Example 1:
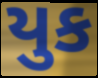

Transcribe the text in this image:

યુક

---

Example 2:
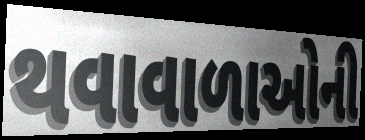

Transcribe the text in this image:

થવાવાળાઓની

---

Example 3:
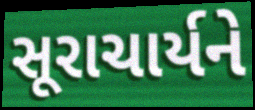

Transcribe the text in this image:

સૂરાચાર્યને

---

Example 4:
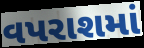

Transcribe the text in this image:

વપરાશમાં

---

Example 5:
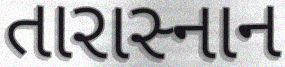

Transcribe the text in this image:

તારાસ્નાન